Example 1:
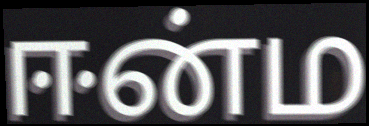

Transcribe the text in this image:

ஈன்ம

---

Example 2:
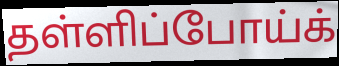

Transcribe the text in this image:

தள்ளிப்போய்க்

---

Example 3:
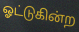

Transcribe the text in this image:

ஓட்டுகின்ற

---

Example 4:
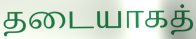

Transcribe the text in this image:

தடையாகத்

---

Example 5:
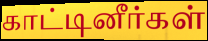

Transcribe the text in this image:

காட்டினீர்கள்